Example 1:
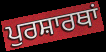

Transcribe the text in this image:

ਪੁਰਸ਼ਾਰਥਾਂ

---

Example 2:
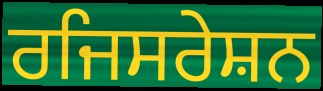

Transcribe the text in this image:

ਰਜਿਸਰੇਸ਼ਨ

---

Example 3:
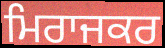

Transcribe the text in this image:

ਮਿਰਾਜਕਰ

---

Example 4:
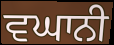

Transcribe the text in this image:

ਵਘਾਨੀ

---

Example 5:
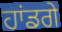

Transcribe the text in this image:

ਹਾਂਡਗੇ